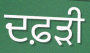
ਦਫ਼ੜੀ